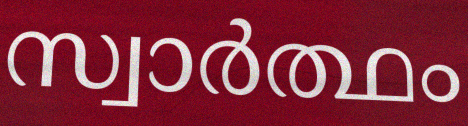
സ്വാർത്ഥം